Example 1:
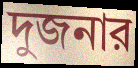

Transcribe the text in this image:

দুজনার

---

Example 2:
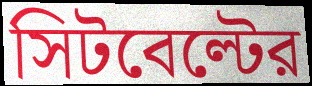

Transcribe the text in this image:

সিটবেল্টের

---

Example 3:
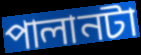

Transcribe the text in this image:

পালানটা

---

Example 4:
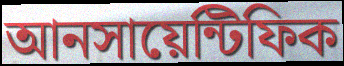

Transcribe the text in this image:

আনসায়েন্টিফিক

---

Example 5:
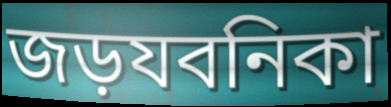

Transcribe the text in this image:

জড়যবনিকা